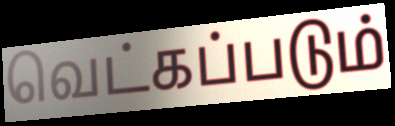
வெட்கப்படும்